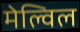
मेल्विल